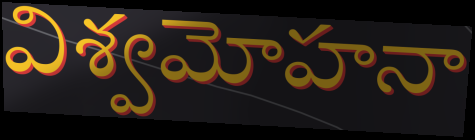
విశ్వమోహనా